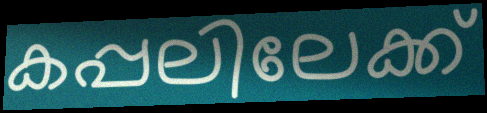
കപ്പലിലേക്ക്